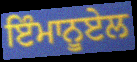
ਇੰਮਾਨੂਏਲ